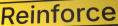
Reinforce